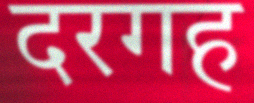
दरगह